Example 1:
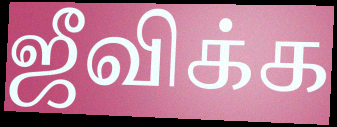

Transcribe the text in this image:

ஜீவிக்க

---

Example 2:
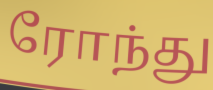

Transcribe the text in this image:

ரோந்து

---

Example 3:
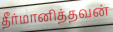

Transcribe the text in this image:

தீர்மானித்தவன்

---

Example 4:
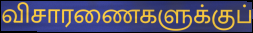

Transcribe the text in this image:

விசாரணைகளுக்குப்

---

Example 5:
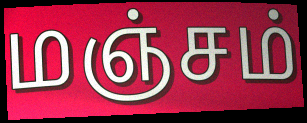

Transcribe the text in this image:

மஞ்சம்